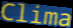
Clima